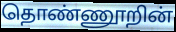
தொண்ணூறின்